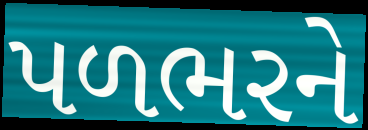
પળભરને